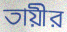
তায়ীর